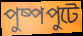
পুষ্পপুটে